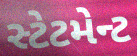
સ્ટેટમેન્ટ